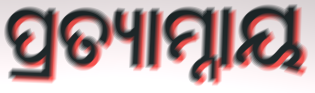
ପ୍ରତ୍ୟାମ୍ନାୟ